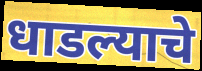
धाडल्याचे